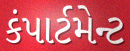
કંપાર્ટમેન્ટ